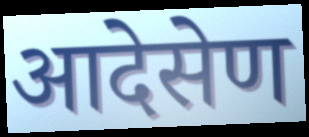
आदेसेण